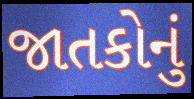
જાતકોનું